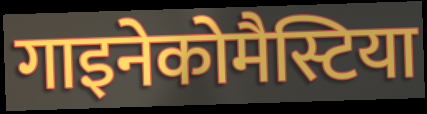
गाइनेकोमैस्टिया